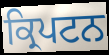
ਕ੍ਰਿਪਟਨ